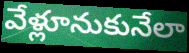
వేళ్లూనుకునేలా